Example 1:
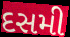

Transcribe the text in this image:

દસમી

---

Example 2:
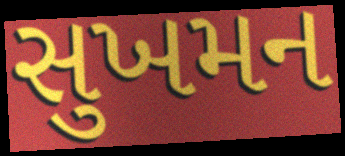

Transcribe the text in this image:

સુખમન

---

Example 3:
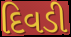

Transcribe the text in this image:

દિવડી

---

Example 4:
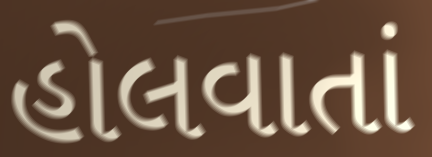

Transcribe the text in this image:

હોલવાતાં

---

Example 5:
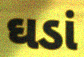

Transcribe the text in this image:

ઘડાં